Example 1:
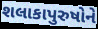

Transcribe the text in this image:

શલાકાપુરુષોને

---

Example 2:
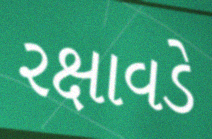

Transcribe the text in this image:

રક્ષાવડે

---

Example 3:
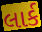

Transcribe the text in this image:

લાર્ક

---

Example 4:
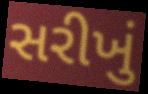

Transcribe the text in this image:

સરીખું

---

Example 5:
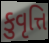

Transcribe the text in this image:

કુવૃત્તિ